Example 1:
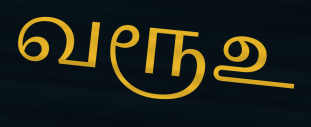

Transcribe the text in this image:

வரூஉ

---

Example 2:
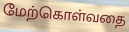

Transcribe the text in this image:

மேற்கொள்வதை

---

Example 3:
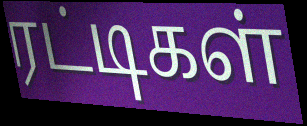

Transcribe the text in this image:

ரட்டிகள்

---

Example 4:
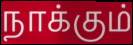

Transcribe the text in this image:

நாக்கும்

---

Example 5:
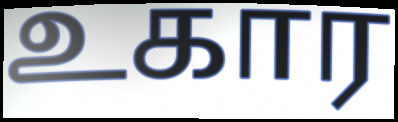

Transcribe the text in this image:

உகார